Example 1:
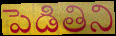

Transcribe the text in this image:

పెడితిని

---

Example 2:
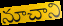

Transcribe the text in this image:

నూచాని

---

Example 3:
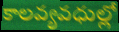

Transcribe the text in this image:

కాలవ్యవధుల్లో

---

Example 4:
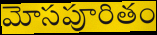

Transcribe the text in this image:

మోసపూరితం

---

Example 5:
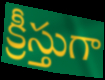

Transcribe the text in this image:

క్రీస్తుగా